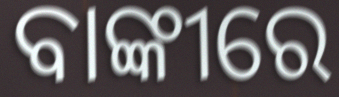
ବାଙ୍କୀରେ